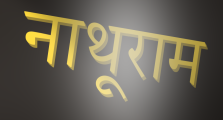
नाथूराम